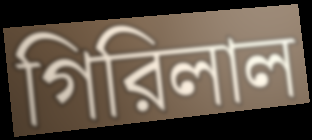
গিরিলাল